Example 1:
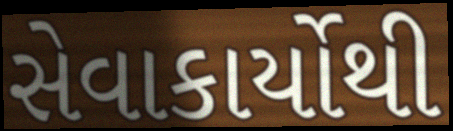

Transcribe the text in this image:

સેવાકાર્યોથી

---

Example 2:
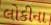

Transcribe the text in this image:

લોકીના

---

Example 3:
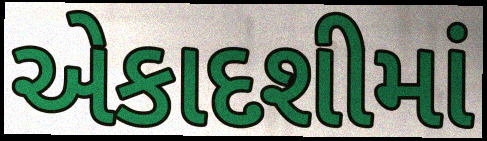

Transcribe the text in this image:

એકાદશીમાં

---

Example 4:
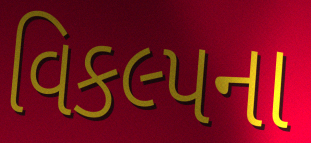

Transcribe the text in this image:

વિકલ્પના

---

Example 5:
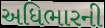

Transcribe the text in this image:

અધિભારની